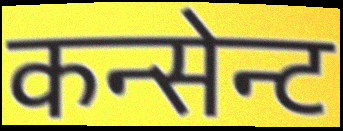
कन्सेन्ट